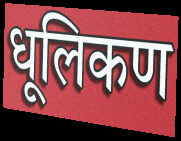
धूलिकण